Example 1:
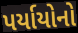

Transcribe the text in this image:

પર્યાયોનો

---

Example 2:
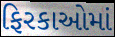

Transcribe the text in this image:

ફિરકાઓમાં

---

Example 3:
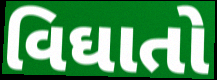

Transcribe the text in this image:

વિઘાતો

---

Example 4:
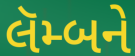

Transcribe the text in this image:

લૅમ્બને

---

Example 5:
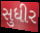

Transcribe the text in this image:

સુધીર